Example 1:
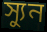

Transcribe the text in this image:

স্যুন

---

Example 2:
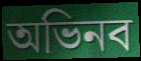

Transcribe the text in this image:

অভিনব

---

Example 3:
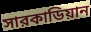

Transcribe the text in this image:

সারকাডিয়ান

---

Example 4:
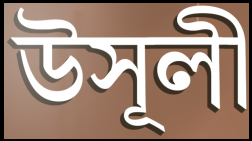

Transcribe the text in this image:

উসূলী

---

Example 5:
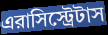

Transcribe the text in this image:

এরাসিস্ট্রেটাস